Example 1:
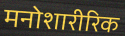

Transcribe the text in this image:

मनोशारीरिक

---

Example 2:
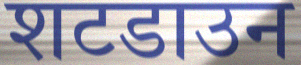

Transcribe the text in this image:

शटडाउन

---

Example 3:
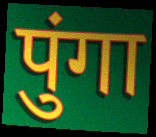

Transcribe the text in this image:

पुंगा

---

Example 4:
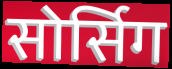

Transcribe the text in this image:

सोर्सिग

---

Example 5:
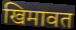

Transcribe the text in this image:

खिमावत